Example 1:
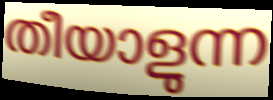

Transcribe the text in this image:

തീയാളുന്ന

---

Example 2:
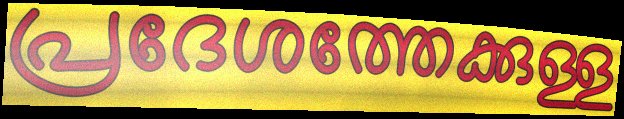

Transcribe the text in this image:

പ്രദേശത്തേക്കുള്ള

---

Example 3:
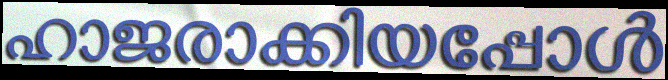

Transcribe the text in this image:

ഹാജരാക്കിയപ്പോൾ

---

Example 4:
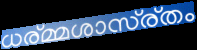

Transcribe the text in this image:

ധര്മ്മശാസ്ര്തം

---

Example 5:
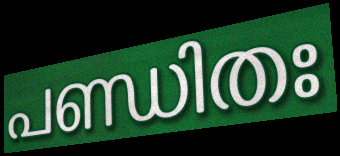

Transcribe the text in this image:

പണ്ഡിതഃ